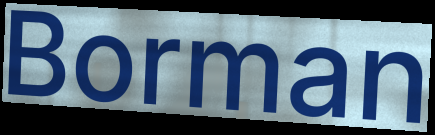
Borman